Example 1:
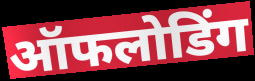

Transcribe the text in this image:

ऑफलोडिंग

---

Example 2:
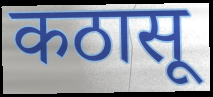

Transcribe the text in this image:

कठासू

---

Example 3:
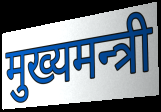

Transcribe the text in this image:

मुख्यमन्त्री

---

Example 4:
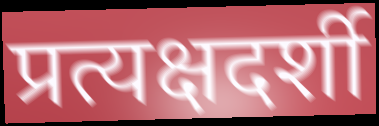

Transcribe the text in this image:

प्रत्यक्षदर्शी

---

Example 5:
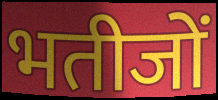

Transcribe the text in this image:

भतीजों